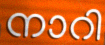
നാറി